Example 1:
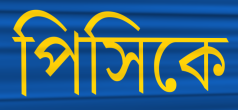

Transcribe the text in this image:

পিসিকে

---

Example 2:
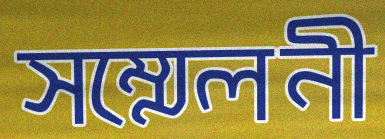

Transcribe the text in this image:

সম্মেলনী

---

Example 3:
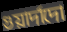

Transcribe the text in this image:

গুয়ার্দাদো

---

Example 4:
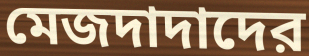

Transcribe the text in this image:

মেজদাদাদের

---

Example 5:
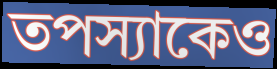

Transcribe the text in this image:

তপস্যাকেও